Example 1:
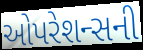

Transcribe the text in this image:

ઓપરેશન્સની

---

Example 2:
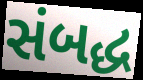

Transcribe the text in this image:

સંબદ્ધ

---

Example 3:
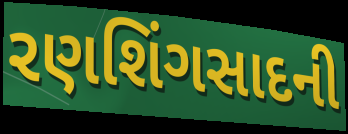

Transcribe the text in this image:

રણશિંગસાદની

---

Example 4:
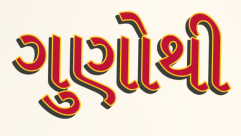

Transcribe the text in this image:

ગુણોથી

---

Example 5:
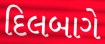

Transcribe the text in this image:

દિલબાગે